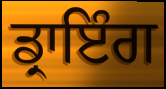
ਡ੍ਰਾਇੰਗ